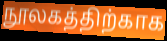
நூலகத்திற்காக